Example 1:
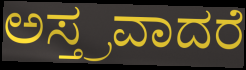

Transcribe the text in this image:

ಅಸ್ತ್ರವಾದರೆ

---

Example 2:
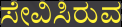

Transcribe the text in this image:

ಸೇವಿಸಿರುವ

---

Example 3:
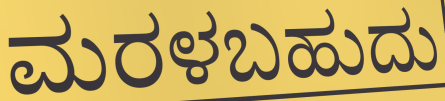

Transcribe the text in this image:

ಮರಳಬಹುದು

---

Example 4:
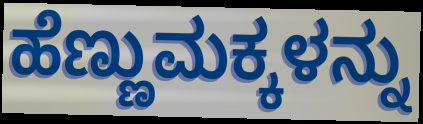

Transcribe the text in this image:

ಹೆಣ್ಣುಮಕ್ಕಳನ್ನು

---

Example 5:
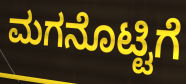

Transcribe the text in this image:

ಮಗನೊಟ್ಟಿಗೆ